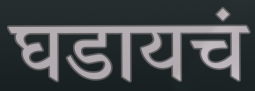
घडायचं